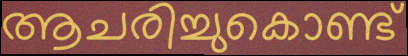
ആചരിച്ചുകൊണ്ട്